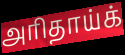
அரிதாய்க்